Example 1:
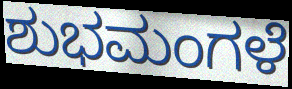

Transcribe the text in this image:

ಶುಭಮಂಗಳೆ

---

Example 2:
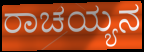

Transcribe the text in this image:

ರಾಚಯ್ಯನ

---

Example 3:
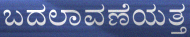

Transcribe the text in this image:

ಬದಲಾವಣೆಯತ್ತ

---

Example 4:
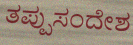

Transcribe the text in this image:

ತಪ್ಪುಸಂದೇಶ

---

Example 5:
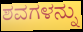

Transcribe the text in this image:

ಶವಗಳನ್ನು